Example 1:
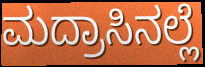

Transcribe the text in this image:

ಮದ್ರಾಸಿನಲ್ಲೆ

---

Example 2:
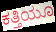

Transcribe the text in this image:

ಕತ್ತಿಯೂ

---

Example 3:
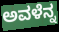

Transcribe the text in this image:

ಅವಳೆನ್ನ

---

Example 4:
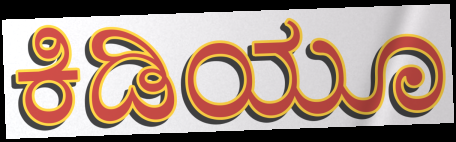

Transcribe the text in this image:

ಕಿಡಿಯೂ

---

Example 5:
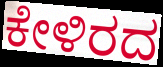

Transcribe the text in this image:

ಕೇಳಿರದ